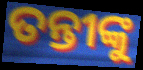
ତନ୍ତୀଙ୍କୁ